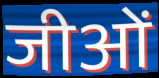
जीओं